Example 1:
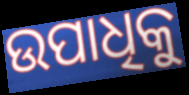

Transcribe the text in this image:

ଉପାଧିକୁ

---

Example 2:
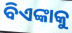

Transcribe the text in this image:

ବିଏଙ୍କାକୁ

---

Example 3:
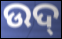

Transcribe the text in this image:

ଉଦ୍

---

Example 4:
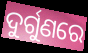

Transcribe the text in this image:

ଦୁର୍ଗୁଣରେ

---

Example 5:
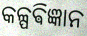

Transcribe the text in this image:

କଳ୍ପଵିଜ୍ଞାନ